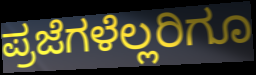
ಪ್ರಜೆಗಳೆಲ್ಲರಿಗೂ